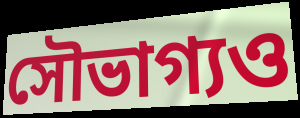
সৌভাগ্যও